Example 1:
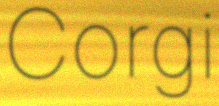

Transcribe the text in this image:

Corgi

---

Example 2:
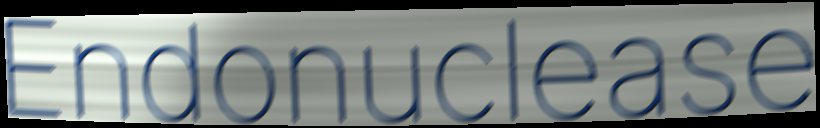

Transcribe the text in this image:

Endonuclease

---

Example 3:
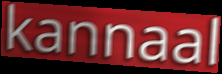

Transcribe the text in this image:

kannaal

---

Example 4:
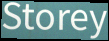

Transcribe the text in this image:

Storey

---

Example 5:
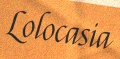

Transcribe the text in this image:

Lolocasia